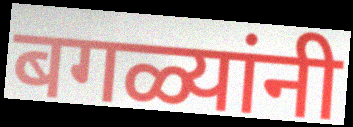
बगळ्यांनी